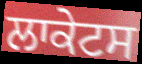
ਲਾਕੇਟਸ